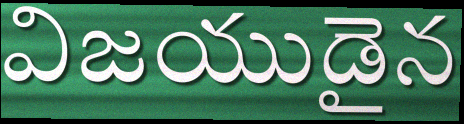
విజయుడైన